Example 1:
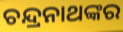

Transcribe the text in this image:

ଚନ୍ଦ୍ରନାଥଙ୍କର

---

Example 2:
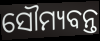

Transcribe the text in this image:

ସୌମ୍ୟବନ୍ତ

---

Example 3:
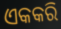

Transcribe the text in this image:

ଏକକରି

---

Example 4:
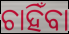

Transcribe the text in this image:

ଚାହିଁବା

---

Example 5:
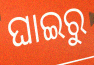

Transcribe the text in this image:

ଘାଇରୁ